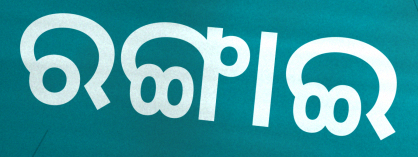
ରଙ୍ଗାଇ